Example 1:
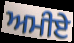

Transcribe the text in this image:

ਅਮੀਏ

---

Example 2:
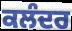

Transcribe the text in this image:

ਕਲੰਦਰ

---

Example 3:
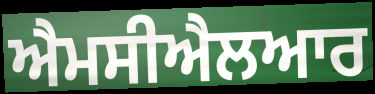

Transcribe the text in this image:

ਐਮਸੀਐਲਆਰ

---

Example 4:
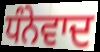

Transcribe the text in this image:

ਧੰਨੇਵਾਦ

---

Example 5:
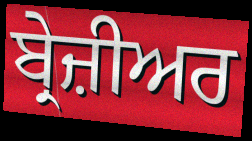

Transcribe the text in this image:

ਬ੍ਰੇਜ਼ੀਅਰ